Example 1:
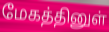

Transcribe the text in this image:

மேகத்தினுள்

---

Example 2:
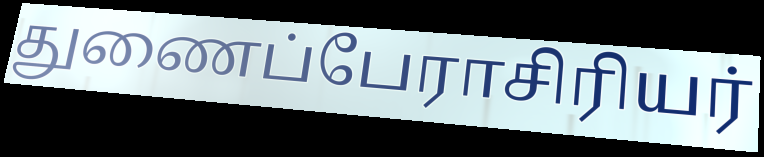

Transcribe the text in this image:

துணைப்பேராசிரியர்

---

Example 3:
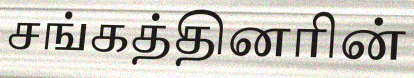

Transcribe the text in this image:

சங்கத்தினரின்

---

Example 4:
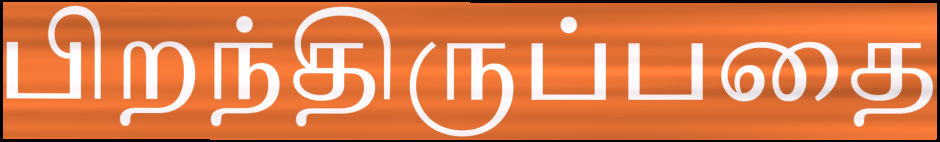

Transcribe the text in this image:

பிறந்திருப்பதை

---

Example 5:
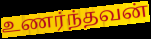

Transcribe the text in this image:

உணர்ந்தவன்